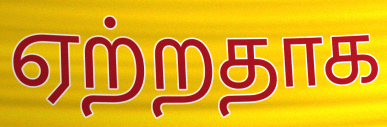
ஏற்றதாக